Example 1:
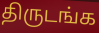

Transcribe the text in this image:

திருடங்க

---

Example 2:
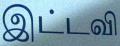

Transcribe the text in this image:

இட்டவி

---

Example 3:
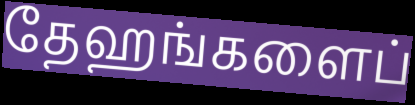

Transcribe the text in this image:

தேஹங்களைப்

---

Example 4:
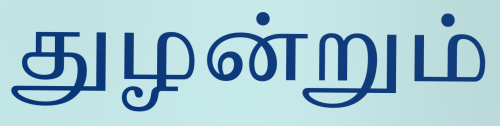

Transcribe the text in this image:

துழன்றும்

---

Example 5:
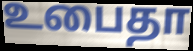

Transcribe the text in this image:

உபைதா